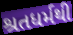
શ્રતધર્મથી